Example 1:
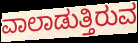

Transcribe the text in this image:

ವಾಲಾಡುತ್ತಿರುವ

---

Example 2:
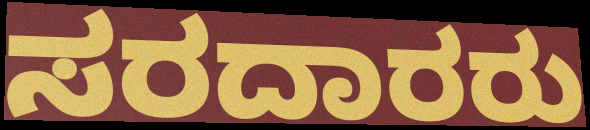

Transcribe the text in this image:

ಸರದಾರರು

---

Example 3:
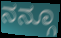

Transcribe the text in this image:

ನನ್ಗೂ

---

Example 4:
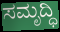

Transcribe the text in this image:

ಸಮೃದ್ಧಿ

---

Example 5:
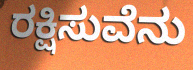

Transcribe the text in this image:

ರಕ್ಷಿಸುವೆನು